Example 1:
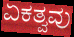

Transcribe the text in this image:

ಏಕತ್ವವು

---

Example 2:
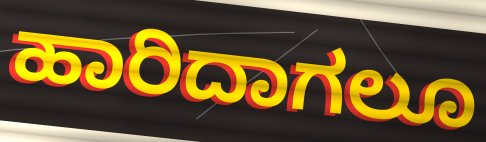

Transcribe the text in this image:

ಹಾರಿದಾಗಲೂ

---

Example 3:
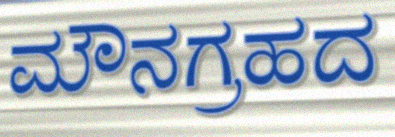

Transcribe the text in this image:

ಮೌನಗ್ರಹದ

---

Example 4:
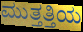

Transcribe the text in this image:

ಮುತ್ತತ್ತಿಯ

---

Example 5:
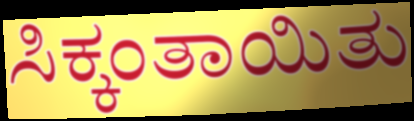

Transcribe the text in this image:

ಸಿಕ್ಕಂತಾಯಿತು